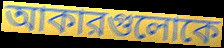
আকারগুলোকে